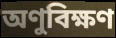
অণুবিক্ষণ